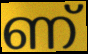
ണ്